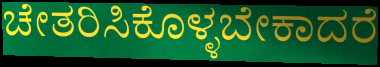
ಚೇತರಿಸಿಕೊಳ್ಳಬೇಕಾದರೆ